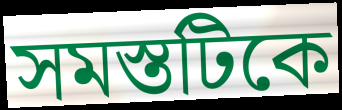
সমস্তটিকে